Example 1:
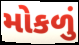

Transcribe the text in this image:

મોકળું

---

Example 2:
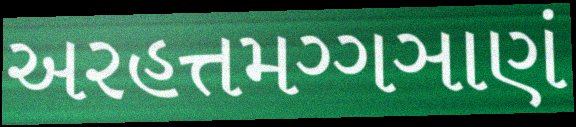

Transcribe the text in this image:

અરહત્તમગ્ગઞાણં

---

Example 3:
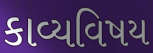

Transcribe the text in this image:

કાવ્યવિષય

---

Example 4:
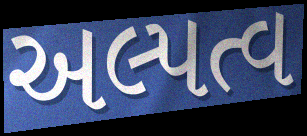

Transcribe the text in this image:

અલ્પત્વ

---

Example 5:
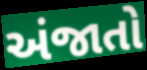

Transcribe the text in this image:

અંજાતો